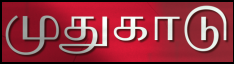
முதுகாடு